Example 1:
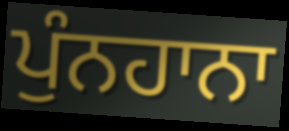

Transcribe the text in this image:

ਪੁੰਨਹਾਨਾ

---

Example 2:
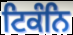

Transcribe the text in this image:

ਟਿਕੰਨਿ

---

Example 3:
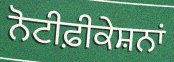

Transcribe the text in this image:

ਨੋਟੀਫ਼ੀਕੇਸ਼ਨਾਂ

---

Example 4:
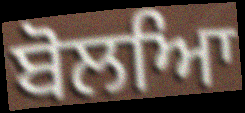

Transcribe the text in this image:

ਬੋਲਆਿ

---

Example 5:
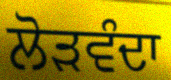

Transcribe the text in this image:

ਲੋੜਵੰਦਾ